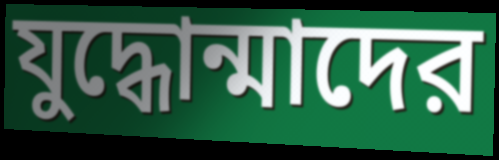
যুদ্ধোন্মাদের